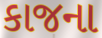
કાજના